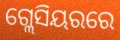
ଗ୍ଲେସିୟରରେ